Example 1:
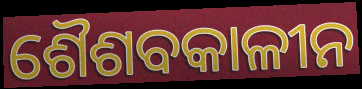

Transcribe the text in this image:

ଶୈଶବକାଳୀନ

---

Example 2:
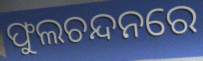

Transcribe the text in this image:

ଫୁଲଚନ୍ଦନରେ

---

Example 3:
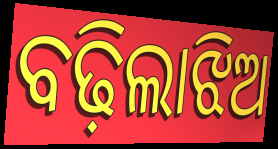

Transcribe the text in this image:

ବଢ଼ିଲାଝିଅ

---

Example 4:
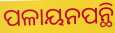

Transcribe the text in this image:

ପଳାୟନପନ୍ଥି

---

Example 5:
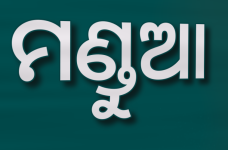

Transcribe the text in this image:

ମଣ୍ଡୁଆ